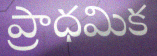
ప్రాధమిక